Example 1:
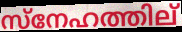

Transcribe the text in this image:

സ്നേഹത്തില്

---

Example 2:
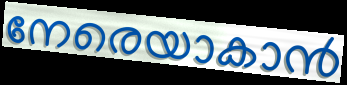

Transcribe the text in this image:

നേരെയാകാൻ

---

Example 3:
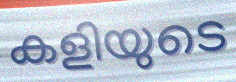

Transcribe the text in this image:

കളിയുടെ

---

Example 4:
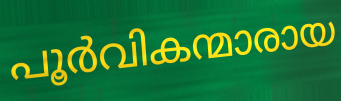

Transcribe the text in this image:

പൂർവികന്മാരായ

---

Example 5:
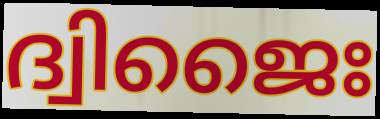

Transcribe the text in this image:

ദ്വിജൈഃ